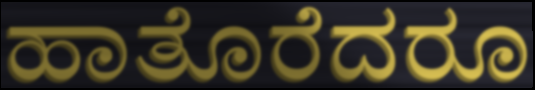
ಹಾತೊರೆದರೂ